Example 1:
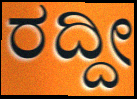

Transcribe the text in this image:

ರದ್ದೀ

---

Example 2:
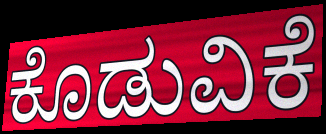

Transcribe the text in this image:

ಕೊಡುವಿಕೆ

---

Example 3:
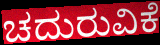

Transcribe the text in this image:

ಚದುರುವಿಕೆ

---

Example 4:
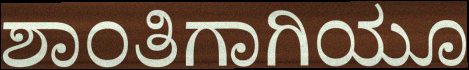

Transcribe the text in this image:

ಶಾಂತಿಗಾಗಿಯೂ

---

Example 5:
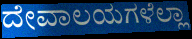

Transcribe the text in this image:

ದೇವಾಲಯಗಳೆಲ್ಲಾ